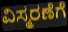
ವಿಸ್ಮರಣೆಗೆ